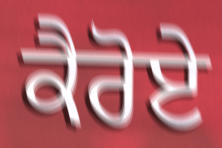
ਕੈਰੋਏ